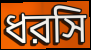
ধরসি